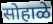
सोहाळे